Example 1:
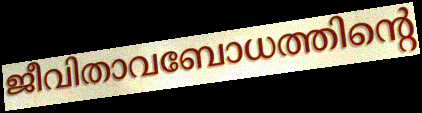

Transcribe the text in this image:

ജീവിതാവബോധത്തിന്റെ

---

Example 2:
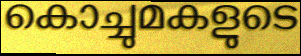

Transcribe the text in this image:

കൊച്ചുമകളുടെ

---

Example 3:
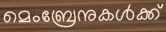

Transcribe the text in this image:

മെംബ്രേനുകൾക്ക്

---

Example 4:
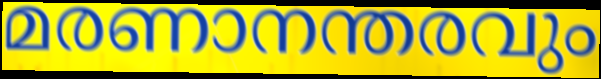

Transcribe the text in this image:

മരണാനന്തരവും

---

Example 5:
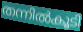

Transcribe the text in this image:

തന്നിൽകൂടി